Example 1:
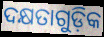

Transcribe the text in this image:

ଦକ୍ଷତାଗୁଡ଼ିକ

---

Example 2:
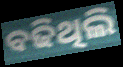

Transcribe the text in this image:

ବଢିଥିଲି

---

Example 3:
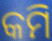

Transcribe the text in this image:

କମି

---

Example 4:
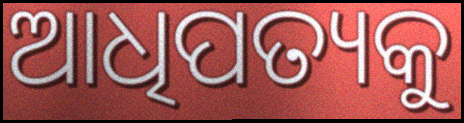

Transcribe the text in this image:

ଆଧିପତ୍ୟକୁ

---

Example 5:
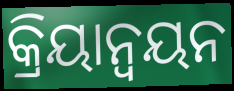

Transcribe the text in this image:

କ୍ରିୟାନ୍ଵୟନ